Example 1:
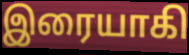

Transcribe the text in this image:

இரையாகி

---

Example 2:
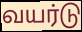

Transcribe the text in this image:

வயர்டு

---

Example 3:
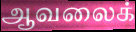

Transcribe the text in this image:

ஆவலைக்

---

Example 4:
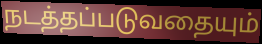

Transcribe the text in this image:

நடத்தப்படுவதையும்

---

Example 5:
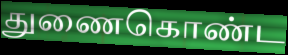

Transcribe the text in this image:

துணைகொண்ட